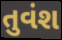
તુવંશ